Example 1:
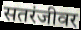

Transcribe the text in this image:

सतरंजीवर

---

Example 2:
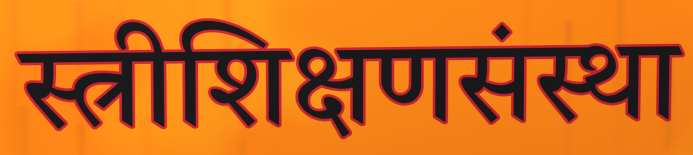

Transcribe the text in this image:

स्त्रीशिक्षणसंस्था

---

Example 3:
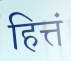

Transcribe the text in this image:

हित्तं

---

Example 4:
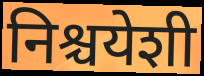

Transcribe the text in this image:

निश्चयेशी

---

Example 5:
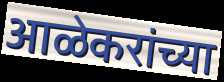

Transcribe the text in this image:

आळेकरांच्या